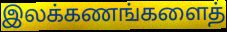
இலக்கணங்களைத்